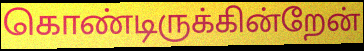
கொண்டிருக்கின்றேன்